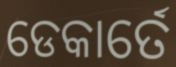
ଡେକାର୍ତେ